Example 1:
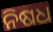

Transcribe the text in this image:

ନିଷଧ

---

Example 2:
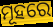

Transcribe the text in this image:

ମୂହରେ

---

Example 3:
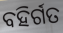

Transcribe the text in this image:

ବହିର୍ଗତ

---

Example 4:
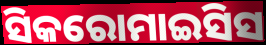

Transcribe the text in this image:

ସିକରୋମାଇସିସ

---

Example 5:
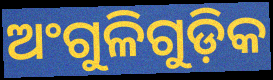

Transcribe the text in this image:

ଅଂଗୁଳିଗୁଡ଼ିକ